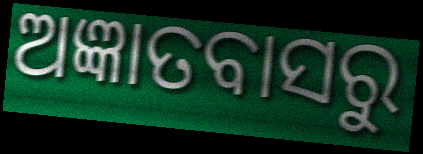
ଅଜ୍ଞାତବାସରୁ